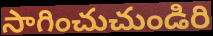
సాగించుచుండిరి